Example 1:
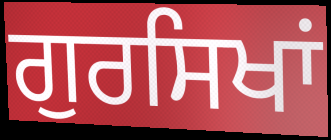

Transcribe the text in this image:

ਗੁਰਸਿਖਾਂ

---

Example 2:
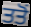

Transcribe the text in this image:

ਤਤੋਂ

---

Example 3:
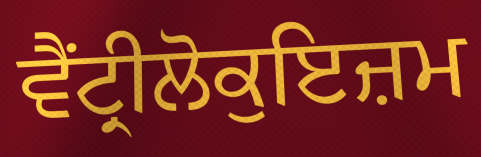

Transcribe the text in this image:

ਵੈਂਟ੍ਰੀਲੋਕੁਇਜ਼ਮ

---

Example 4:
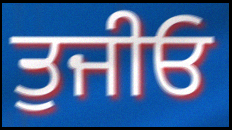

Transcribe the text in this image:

ਤੁਜੀਓ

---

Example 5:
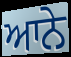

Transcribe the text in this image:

ਆਨੇ